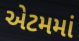
એટમમાં